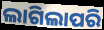
ଲାଗିଲାପରି